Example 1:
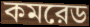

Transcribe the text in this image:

কমরেড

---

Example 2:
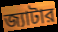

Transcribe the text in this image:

জ্যাটার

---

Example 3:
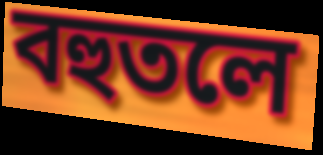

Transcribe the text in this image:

বহুতলে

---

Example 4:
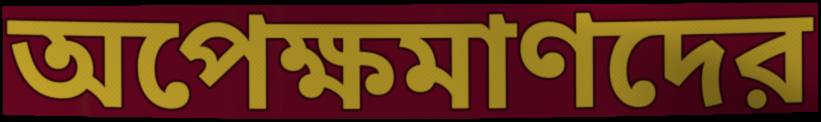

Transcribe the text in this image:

অপেক্ষমাণদের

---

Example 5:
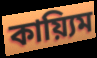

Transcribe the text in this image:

কায়্যিম